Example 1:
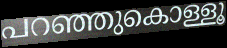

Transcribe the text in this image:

പറഞ്ഞുകൊള്ളൂ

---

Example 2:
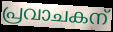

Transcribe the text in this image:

പ്രവാചകന്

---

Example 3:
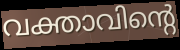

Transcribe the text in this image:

വക്താവിന്റെ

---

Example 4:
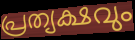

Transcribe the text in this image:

പ്രത്യക്ഷവും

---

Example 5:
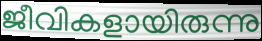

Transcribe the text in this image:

ജീവികളായിരുന്നു